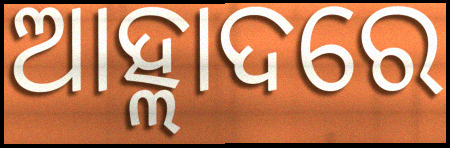
ଆହ୍ଲାଦରେ